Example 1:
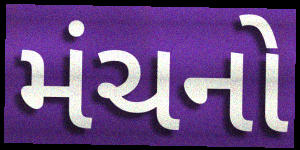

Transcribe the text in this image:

મંચનો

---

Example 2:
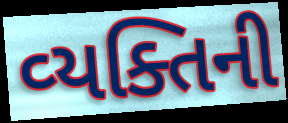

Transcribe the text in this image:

વ્‍યક્તિની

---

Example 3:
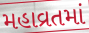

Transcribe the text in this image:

મહાવ્રતમાં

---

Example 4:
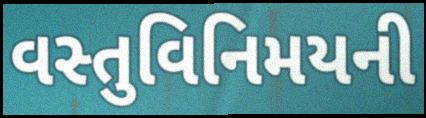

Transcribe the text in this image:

વસ્તુવિનિમયની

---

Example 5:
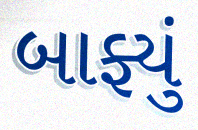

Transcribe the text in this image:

બાફ્યું